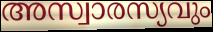
അസ്വാരസ്യവും